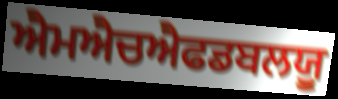
ਐਮਐਚਐਫਡਬਲਯੂ